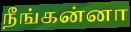
நீங்கன்னா